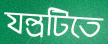
যন্ত্রটিতে